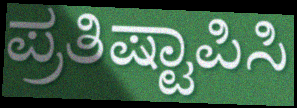
ಪ್ರತಿಷ್ಟಾಪಿಸಿ